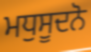
ਮਧੁਸੂਦਨੋ